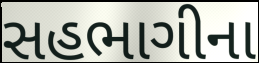
સહભાગીના